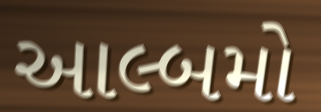
આલ્બમો